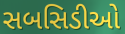
સબસિડીઓ